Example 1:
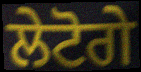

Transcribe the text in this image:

ਲੇਟੋਗੇ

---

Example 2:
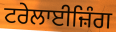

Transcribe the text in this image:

ਟਰੇਲਾਈਜ਼ਿੰਗ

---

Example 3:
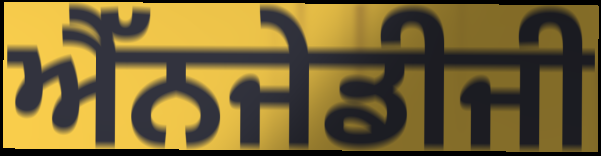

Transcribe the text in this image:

ਐੱਨਜੇਡੀਜੀ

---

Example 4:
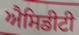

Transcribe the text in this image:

ਐਸਿਡੀਟੀ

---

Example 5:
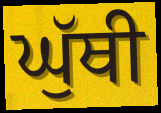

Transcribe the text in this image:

ਘੁੱਥੀ